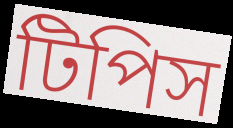
টিপিস